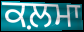
ਕਲ਼ਮਾ